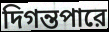
দিগন্তপারে